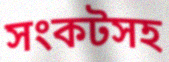
সংকটসহ